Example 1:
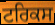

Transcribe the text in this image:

ਟਰਿਕਸ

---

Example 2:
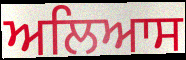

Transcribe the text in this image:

ਅਲਿਆਸ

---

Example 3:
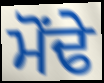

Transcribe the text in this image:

ਮੋਂਢੇ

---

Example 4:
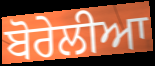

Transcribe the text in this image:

ਬੋਰੇਲੀਆ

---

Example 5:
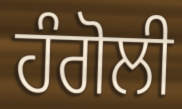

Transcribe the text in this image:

ਹੰਗੋਲੀ